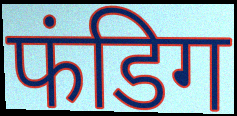
फंडिग